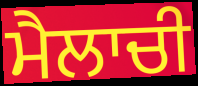
ਮੈਲਾਚੀ